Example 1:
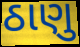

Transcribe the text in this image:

ઠાણુ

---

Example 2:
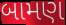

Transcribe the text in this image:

બામણ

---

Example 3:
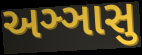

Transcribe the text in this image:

અઞ્ઞાસુ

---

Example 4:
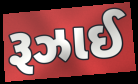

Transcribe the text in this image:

રૂઝાઈ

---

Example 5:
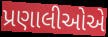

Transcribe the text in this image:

પ્રણાલીઓએ